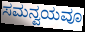
ಸಮನ್ವಯವೂ